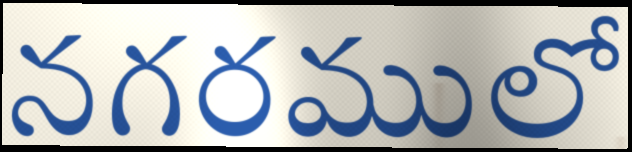
నగరములో